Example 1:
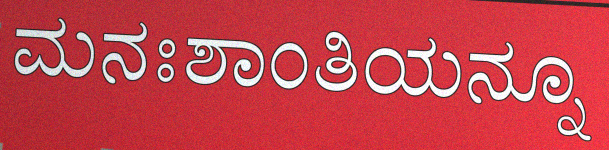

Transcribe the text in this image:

ಮನಃಶಾಂತಿಯನ್ನೂ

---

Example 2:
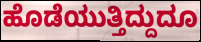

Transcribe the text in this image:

ಹೊಡೆಯುತ್ತಿದ್ದುದೂ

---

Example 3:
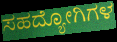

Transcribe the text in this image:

ಸಹದ್ಯೋಗಿಗಳ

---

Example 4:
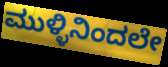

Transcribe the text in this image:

ಮುಳ್ಳಿನಿಂದಲೇ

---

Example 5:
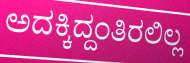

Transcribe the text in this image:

ಅದಕ್ಕಿದ್ದಂತಿರಲಿಲ್ಲ